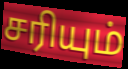
சரியும்